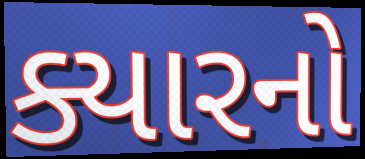
ક્યારનો